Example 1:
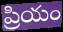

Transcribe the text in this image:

ప్రియం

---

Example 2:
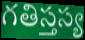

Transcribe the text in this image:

గతిస్తస్య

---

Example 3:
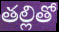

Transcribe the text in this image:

తల్లితో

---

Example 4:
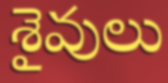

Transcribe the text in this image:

శైవులు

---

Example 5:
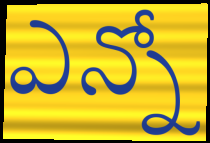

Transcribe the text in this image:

ఎన్నో